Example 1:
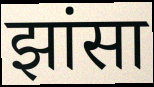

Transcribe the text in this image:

झांसा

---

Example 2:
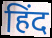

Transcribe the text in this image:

हिंद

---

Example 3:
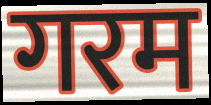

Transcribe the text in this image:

गरम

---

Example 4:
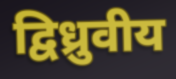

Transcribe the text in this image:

द्विध्रुवीय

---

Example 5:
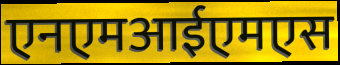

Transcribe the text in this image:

एनएमआईएमएस